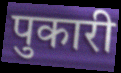
पुकारी